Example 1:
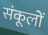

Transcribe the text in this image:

संकूलों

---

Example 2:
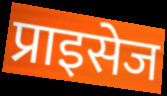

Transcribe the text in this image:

प्राइसेज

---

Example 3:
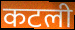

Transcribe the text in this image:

कटली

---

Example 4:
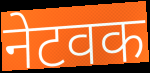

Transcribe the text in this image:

नेटवक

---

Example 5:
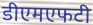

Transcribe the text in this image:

डीएमएफटी